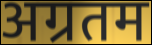
अग्रतम